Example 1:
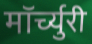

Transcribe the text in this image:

मॉर्च्युरी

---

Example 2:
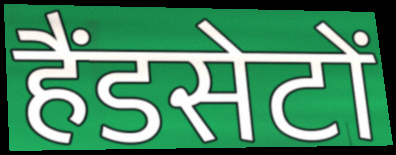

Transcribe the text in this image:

हैंडसेटों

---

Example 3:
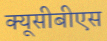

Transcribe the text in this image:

क्यूसीबीएस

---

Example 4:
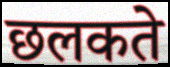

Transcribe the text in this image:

छलकते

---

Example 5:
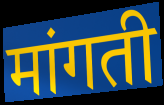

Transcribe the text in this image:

मांगती